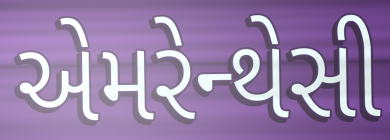
એમરેન્થેસી